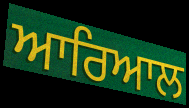
ਆਰਿਆਲ